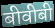
बीवीबी